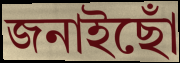
জনাইছোঁ